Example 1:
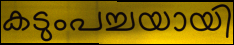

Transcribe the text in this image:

കടുംപച്ചയായി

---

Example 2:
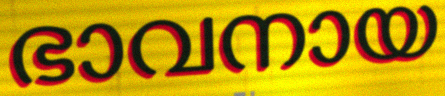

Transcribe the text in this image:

ഭാവനായ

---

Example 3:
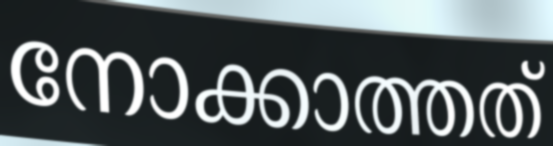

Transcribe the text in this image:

നോക്കാത്തത്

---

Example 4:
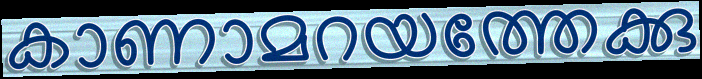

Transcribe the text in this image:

കാണാമറയത്തേക്കു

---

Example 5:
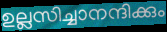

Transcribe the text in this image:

ഉല്ലസിച്ചാനന്ദിക്കും